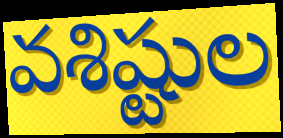
వశిష్టుల